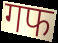
गफ